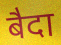
बैदा